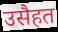
उसैहत